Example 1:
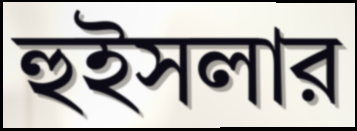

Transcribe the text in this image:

হুইসলার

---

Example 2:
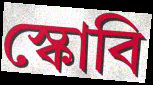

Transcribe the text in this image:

স্কোবি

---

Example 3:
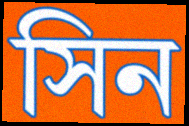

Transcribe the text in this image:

সিন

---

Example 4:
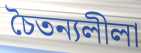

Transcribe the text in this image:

চৈতন্যলীলা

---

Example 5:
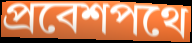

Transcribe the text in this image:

প্রবেশপথে